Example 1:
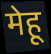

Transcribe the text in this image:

मेहू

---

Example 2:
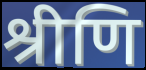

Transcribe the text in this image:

श्रीणि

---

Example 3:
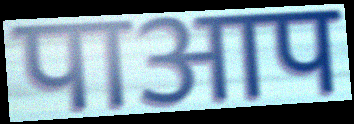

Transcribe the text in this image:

पाआप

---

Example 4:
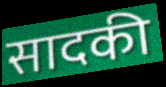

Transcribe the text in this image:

सादकी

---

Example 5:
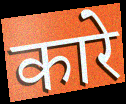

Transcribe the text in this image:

कारे